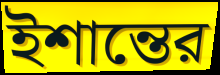
ইশান্তের